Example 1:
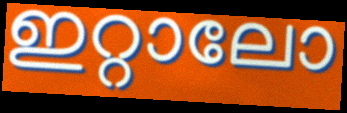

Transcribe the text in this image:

ഇറ്റാലോ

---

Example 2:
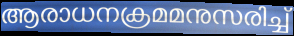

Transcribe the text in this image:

ആരാധനക്രമമനുസരിച്ച്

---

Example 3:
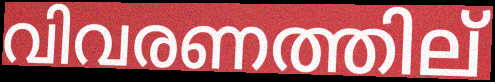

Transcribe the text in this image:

വിവരണത്തില്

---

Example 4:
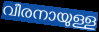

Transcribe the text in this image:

വീരനായുള്ള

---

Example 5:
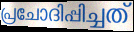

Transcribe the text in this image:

പ്രചോദിപ്പിച്ചത്